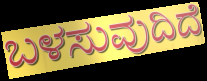
ಬಳಸುವುದಿದೆ